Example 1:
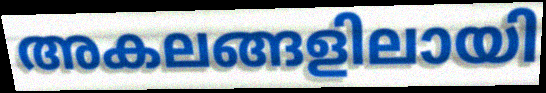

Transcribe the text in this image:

അകലങ്ങളിലായി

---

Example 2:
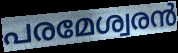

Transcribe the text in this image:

പരമേശ്വരൻ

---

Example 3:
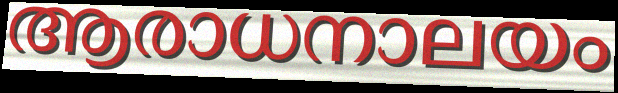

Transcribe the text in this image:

ആരാധനാലയം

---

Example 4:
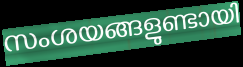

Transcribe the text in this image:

സംശയങ്ങളുണ്ടായി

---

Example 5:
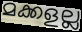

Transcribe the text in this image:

മക്കളല്ല